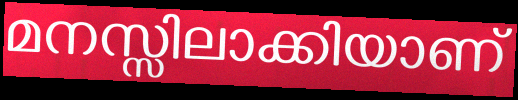
മനസ്സിലാക്കിയാണ്